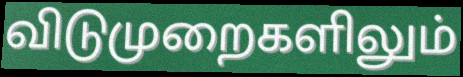
விடுமுறைகளிலும்